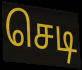
செடி